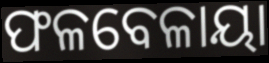
ଫଳବେଳାୟା